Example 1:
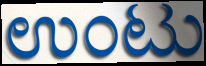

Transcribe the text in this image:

ಉಂಟು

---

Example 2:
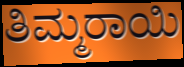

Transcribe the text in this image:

ತಿಮ್ಮರಾಯಿ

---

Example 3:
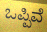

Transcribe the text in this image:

ಒಪ್ಪಿವೆ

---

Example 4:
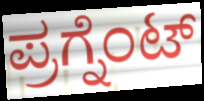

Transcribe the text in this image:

ಪ್ರಗ್ನೆಂಟ್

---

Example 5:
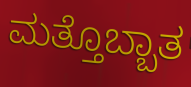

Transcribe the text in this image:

ಮತ್ತೊಬ್ಬಾತ